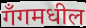
गँगमधील